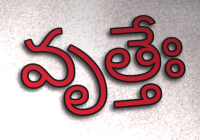
వృత్తేః